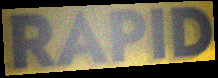
RAPID